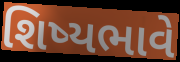
શિષ્યભાવે